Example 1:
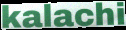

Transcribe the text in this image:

kalachi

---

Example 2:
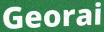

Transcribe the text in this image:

Georai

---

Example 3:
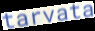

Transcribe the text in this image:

tarvata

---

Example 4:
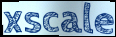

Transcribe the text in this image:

xscale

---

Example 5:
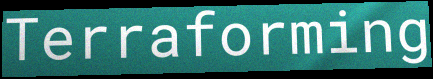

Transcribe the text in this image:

Terraforming